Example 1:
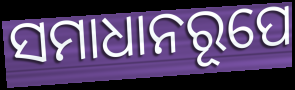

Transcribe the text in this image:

ସମାଧାନରୂପେ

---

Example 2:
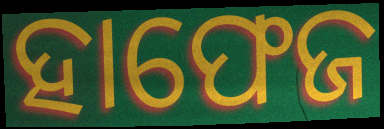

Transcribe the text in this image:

ହାଫେଜ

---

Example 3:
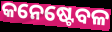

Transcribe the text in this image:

କନେଷ୍ଟେବଳ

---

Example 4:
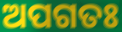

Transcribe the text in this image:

ଅପଗତଃ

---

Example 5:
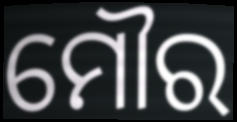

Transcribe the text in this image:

ମୌର